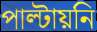
পাল্টায়নি